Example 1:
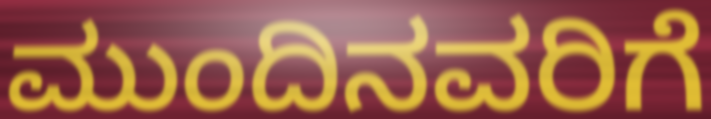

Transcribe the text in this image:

ಮುಂದಿನವರಿಗೆ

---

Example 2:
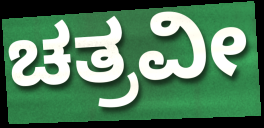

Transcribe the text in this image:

ಚತ್ರವೀ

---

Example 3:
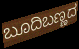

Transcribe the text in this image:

ಬೂದಿಬಣ್ಣದ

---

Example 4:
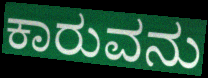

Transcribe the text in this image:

ಕಾರುವನು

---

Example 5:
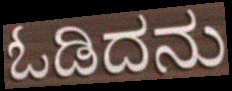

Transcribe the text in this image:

ಓಡಿದನು